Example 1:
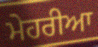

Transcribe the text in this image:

ਮੇਹਰੀਆ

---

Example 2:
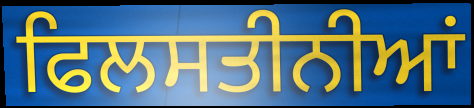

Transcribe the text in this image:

ਫਿਲਸਤੀਨੀਆਂ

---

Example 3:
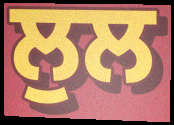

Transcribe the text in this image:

ਲੁਲ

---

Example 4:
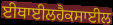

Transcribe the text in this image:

ਈਥਾਈਲਹੈਕਸਾਈਲ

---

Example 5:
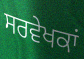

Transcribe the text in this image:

ਸਰਵੇਖਕਾਂ